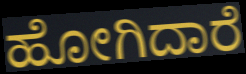
ಹೋಗಿದಾರೆ